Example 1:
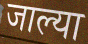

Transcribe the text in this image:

जाल्या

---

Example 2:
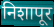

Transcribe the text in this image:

निशापूर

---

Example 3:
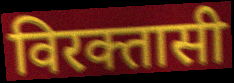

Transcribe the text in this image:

विरक्तासी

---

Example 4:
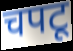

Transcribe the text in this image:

चपटू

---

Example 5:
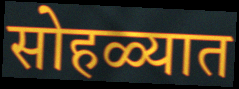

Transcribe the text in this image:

सोहळ्यात